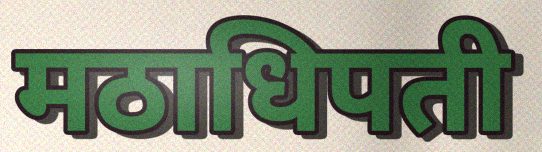
मठाधिपती